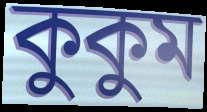
কুকুম